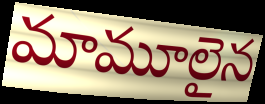
మామూలైన